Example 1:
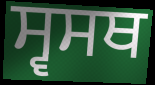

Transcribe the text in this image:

ਸ੍ਵਸਥ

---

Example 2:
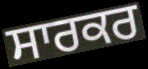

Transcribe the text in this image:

ਸਾਰਕਰ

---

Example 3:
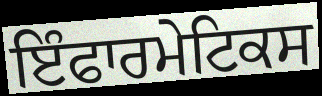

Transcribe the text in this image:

ਇੰਫਾਰਮੇਟਿਕਸ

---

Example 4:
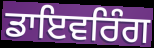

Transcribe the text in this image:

ਡਾਇਵਰਿੰਗ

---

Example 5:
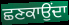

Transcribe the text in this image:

ਛਣਕਾਉਂਦਾ